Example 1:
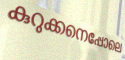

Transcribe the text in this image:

കുറുക്കനെപ്പോലെ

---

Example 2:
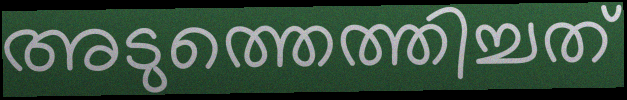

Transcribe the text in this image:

അടുത്തെത്തിച്ചത്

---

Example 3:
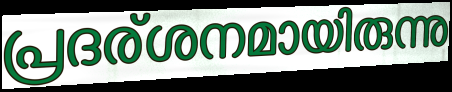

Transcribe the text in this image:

പ്രദര്ശനമായിരുന്നു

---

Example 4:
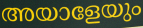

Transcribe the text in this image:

അയാളേയും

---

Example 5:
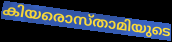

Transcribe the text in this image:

കിയരൊസ്താമിയുടെ